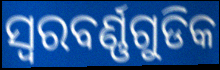
ସ୍ୱରବର୍ଣ୍ଣଗୁଡିକ